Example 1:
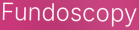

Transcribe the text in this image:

Fundoscopy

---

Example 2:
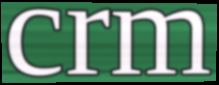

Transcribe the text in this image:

crm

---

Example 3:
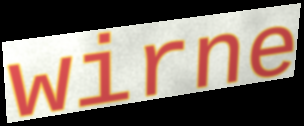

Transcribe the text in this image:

wirne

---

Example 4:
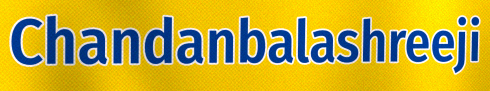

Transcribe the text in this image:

Chandanbalashreeji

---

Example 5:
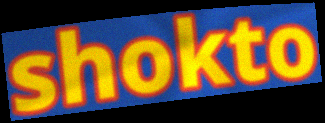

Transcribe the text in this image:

shokto